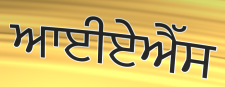
ਆਈਏਐੱਸ